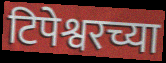
टिपेश्वरच्या